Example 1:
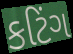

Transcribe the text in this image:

કટિંગ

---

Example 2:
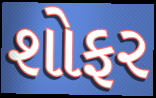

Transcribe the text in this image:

શોફર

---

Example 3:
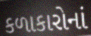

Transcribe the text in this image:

કળાકારોનાં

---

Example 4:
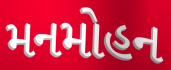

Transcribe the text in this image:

મનમોહન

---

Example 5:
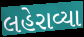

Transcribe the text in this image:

લહેરાવ્યા